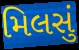
મિલસું